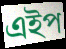
এইপ